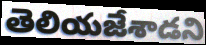
తెలియజేశాడని